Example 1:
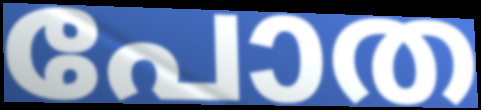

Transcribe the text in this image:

പോത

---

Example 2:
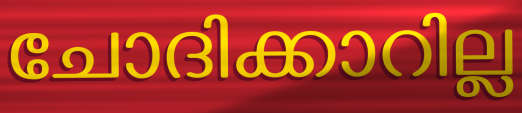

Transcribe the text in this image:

ചോദിക്കാറില്ല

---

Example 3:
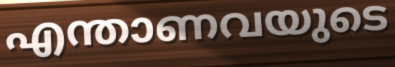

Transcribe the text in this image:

എന്താണവയുടെ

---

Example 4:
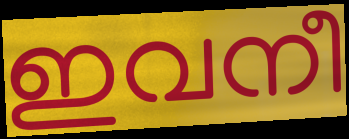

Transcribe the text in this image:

ഇവനീ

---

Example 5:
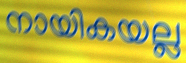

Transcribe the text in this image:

നായികയല്ല